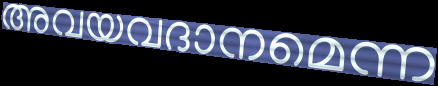
അവയവദാനമെന്ന